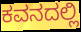
ಕವನದಲ್ಲಿ